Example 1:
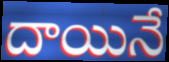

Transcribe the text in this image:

దాయినే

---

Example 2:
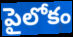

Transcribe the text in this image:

పైలోకం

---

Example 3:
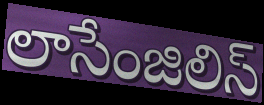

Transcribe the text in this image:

లాసేంజిలిస్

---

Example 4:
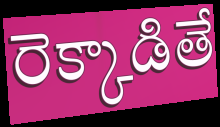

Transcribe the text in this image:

రెక్కాడితే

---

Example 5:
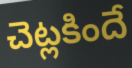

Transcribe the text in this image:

చెట్లకిందే